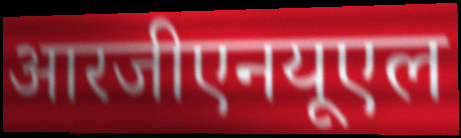
आरजीएनयूएल